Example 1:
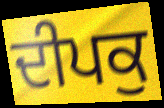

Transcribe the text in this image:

ਦੀਪਕੁ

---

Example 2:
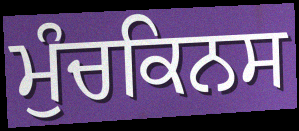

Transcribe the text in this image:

ਮੁੰਚਕਿਨਸ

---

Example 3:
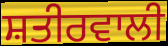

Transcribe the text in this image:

ਸ਼ਤੀਰਵਾਲੀ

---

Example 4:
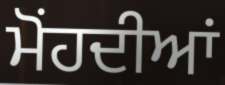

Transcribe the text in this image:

ਮੋਂਹਦੀਆਂ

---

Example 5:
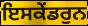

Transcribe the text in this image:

ਇਸਕੇਂਡਰੁਨ